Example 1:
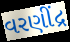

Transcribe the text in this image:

વરણીંદ્ર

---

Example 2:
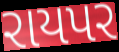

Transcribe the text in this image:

રાયપર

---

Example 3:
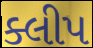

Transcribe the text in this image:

ક્લીપ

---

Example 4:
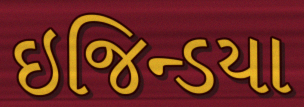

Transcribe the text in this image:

ઇજિન્ડયા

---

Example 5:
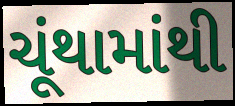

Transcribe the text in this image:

ચૂંથામાંથી